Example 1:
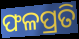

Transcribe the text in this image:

ଫଳପ୍ରତି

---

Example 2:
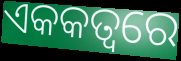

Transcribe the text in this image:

ଏକକତ୍ୱରେ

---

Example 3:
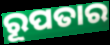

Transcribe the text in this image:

ରୂପତାର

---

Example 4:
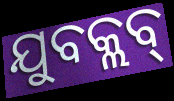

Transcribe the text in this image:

ଯୁବକ୍ଲବ୍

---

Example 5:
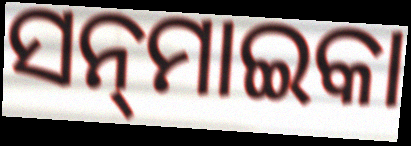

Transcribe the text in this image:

ସନ୍‌ମାଇକା